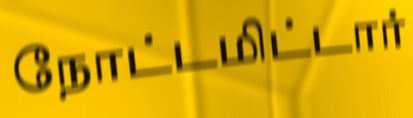
நோட்டமிட்டார்